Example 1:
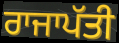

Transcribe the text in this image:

ਰਾਜਾਪੱਤੀ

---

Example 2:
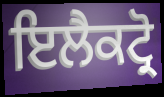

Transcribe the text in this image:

ਇਲੈਕਟ੍ਰੋ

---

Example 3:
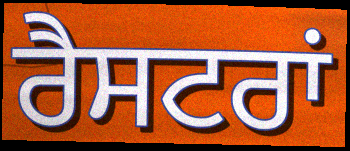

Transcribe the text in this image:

ਰੈਸਟਰਾਂ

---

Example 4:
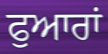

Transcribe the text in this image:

ਫੁਆਰਾਂ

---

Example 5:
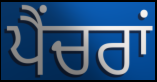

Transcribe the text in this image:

ਪੈਂਚਰਾਂ